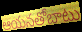
ఆయనతోబాటు